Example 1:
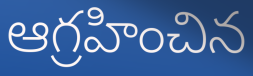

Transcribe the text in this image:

ఆగ్రహించిన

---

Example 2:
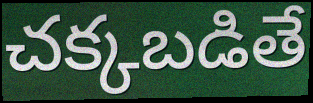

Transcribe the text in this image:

చక్కబడితే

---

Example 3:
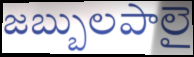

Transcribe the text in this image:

జబ్బులపాలై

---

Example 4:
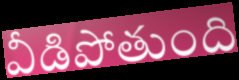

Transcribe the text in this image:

వీడిపోతుంది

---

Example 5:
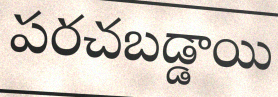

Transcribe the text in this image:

పరచబడ్డాయి